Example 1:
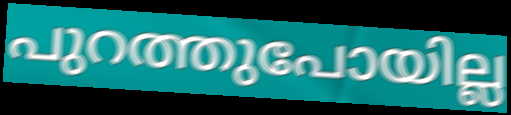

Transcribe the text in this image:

പുറത്തുപോയില്ല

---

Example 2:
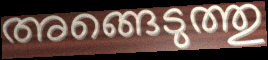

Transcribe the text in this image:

അങ്ങെടുത്തു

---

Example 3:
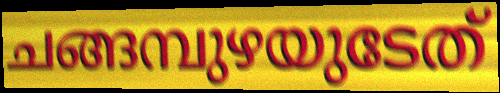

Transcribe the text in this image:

ചങ്ങമ്പുഴയുടേത്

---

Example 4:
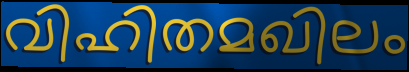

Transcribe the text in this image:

വിഹിതമഖിലം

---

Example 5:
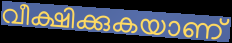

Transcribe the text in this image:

വീക്ഷിക്കുകയാണ്